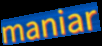
maniar